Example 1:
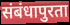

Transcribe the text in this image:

संबंधापुरता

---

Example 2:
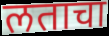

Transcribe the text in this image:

लताचा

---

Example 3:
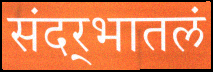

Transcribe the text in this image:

संदर्भातलं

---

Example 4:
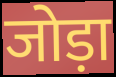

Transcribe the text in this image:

जोड़ा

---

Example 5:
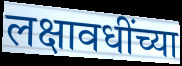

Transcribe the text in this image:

लक्षावधींच्या